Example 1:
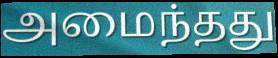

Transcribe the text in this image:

அமைந்தது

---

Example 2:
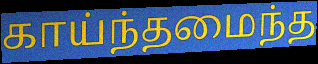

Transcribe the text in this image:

காய்ந்தமைந்த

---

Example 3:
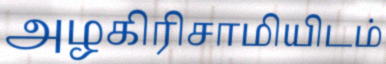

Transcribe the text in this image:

அழகிரிசாமியிடம்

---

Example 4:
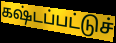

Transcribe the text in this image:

கஷ்டப்பட்டுச்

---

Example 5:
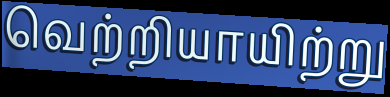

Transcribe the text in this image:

வெற்றியாயிற்று